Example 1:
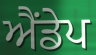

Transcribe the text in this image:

ਐਂਡੇਪ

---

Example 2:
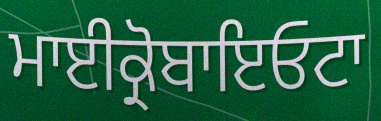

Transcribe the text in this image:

ਮਾਈਕ੍ਰੋਬਾਇਓਟਾ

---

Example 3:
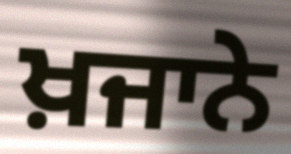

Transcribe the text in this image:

ਖ਼ਜਾਨੇ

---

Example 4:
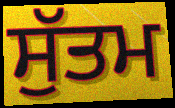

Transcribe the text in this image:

ਸੁੱਤਮ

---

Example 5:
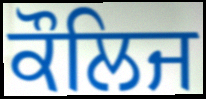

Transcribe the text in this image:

ਕੌਲਿਜ